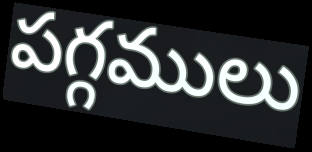
పగ్గములు